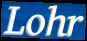
Lohr